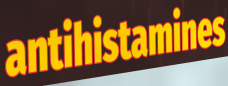
antihistamines